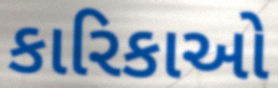
કારિકાઓ